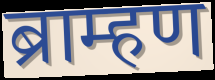
ब्राम्हण